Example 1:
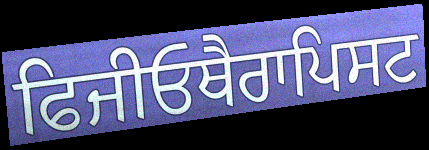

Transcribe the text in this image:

ਫਿਜੀਓਥੈਰਾਪਿਸਟ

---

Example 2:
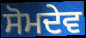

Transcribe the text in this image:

ਸੋਮਦੇਵ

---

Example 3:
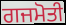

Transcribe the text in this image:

ਗਜਮੋਤੀ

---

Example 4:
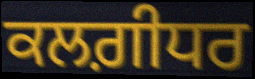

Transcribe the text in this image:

ਕਲਗ਼ੀਧਰ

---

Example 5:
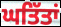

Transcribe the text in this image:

ਘਤਿੱਤਾਂ